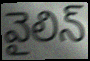
వైలిన్